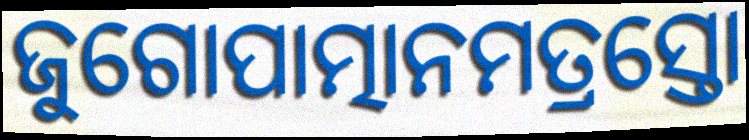
ଜୁଗୋପାତ୍ମାନମତ୍ରସ୍ତୋ